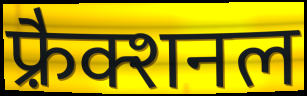
फ़्रैक्शनल